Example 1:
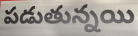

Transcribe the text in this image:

పడుతున్నయి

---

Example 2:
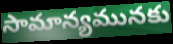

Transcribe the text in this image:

సామాన్యమునకు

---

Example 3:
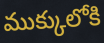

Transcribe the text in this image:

ముక్కులోకి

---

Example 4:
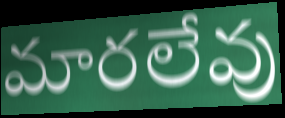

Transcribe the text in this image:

మారలేవు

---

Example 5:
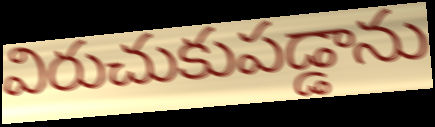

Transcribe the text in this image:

విరుచుకుపడ్డాను